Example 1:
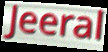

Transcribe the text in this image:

Jeeral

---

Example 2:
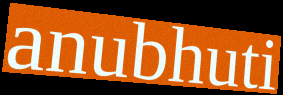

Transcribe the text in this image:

anubhuti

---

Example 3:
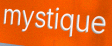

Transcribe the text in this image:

mystique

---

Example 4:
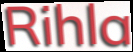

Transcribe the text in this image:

Rihla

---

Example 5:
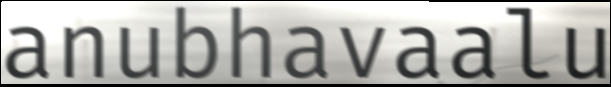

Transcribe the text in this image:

anubhavaalu